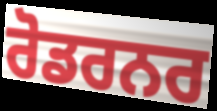
ਰੋਡਰਨਰ